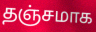
தஞ்சமாக